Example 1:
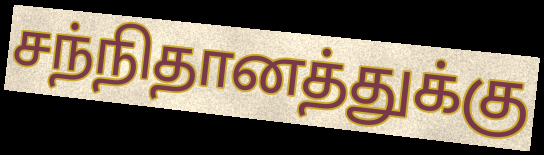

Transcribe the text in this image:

சந்நிதானத்துக்கு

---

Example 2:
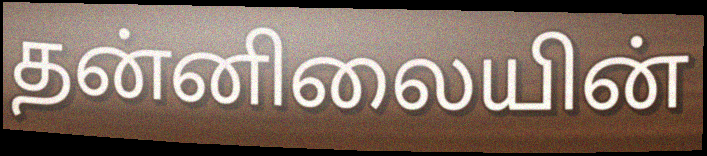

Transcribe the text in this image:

தன்னிலையின்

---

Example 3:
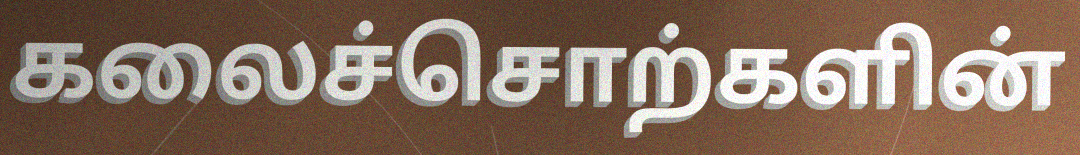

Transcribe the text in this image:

கலைச்சொற்களின்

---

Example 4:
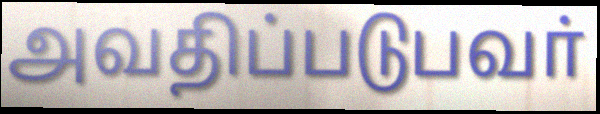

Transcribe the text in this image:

அவதிப்படுபவர்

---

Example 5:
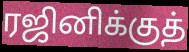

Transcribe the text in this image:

ரஜினிக்குத்